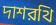
দাশরথি